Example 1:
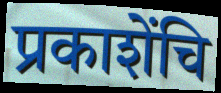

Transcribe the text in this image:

प्रकाशेंचि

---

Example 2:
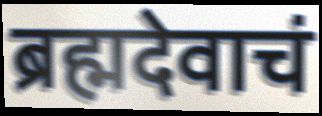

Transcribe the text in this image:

ब्रह्मदेवाचं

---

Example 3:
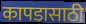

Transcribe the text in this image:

कापडासाठी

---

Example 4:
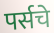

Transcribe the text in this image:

पर्सचे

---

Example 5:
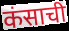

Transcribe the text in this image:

कंसाची